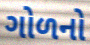
ગોળનો